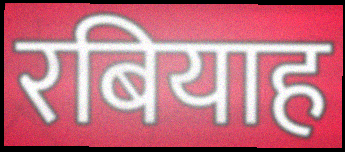
रबियाह